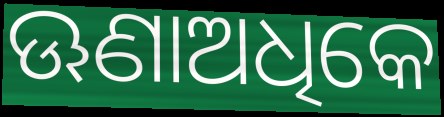
ଊଣାଅଧିକେ